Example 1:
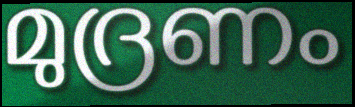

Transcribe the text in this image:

മുദ്രണം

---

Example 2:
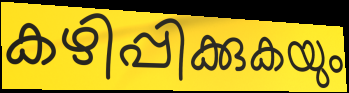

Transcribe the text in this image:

കഴിപ്പിക്കുകയും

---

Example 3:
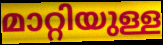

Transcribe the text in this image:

മാറ്റിയുള്ള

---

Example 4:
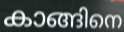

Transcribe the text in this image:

കാങ്ങിനെ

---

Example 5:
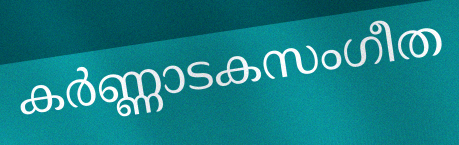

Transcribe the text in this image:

കർണ്ണാടകസംഗീത